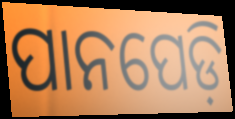
ପାନପେଡ଼ି